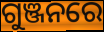
ଗୁଞ୍ଜନରେ